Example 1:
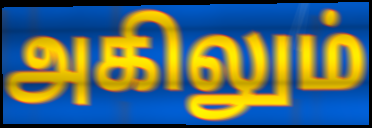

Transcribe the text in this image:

அகிலும்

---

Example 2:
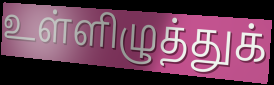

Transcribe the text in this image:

உள்ளிழுத்துக்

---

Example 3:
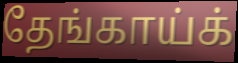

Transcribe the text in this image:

தேங்காய்க்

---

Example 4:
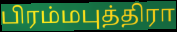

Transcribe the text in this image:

பிரம்மபுத்திரா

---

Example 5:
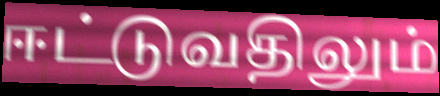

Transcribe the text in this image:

ஈட்டுவதிலும்